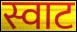
स्वाट